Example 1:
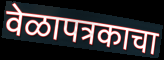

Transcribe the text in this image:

वेळापत्रकाचा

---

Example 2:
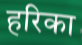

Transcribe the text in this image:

हरिका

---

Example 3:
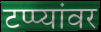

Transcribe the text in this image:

टप्प्यांवर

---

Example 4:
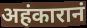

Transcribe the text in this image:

अहंकारानं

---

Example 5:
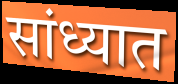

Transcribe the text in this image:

सांध्यात